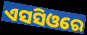
ଏସସିଓରେ